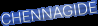
CHENNAGIDE